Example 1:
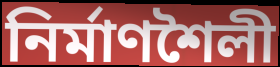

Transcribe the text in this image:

নির্মাণশৈলী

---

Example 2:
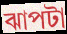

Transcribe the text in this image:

ঝাপটা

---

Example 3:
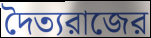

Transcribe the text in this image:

দৈত্যরাজের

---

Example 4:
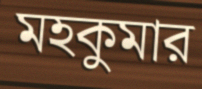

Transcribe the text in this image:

মহকুমার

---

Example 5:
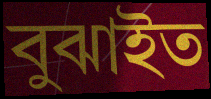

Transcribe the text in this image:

বুঝাইত